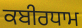
ਕਬੀਰਧਾਮ